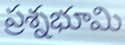
ప్రశ్నభూమి